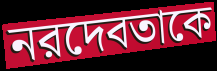
নরদেবতাকে